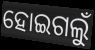
ହୋଇଗଲୁଁ